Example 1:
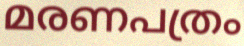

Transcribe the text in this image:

മരണപത്രം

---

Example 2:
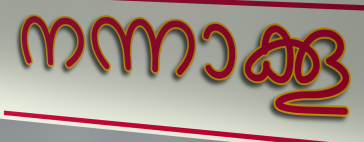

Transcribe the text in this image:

നന്നാക്കൂ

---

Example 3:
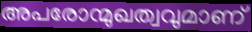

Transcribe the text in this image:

അപരോന്മുഖത്വവുമാണ്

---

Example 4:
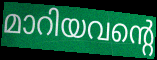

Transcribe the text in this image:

മാറിയവന്റെ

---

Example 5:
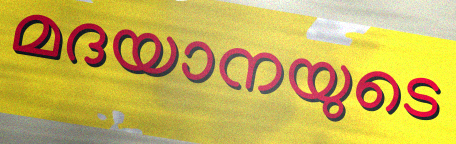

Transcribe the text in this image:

മദയാനയുടെ